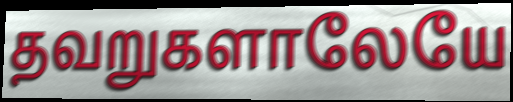
தவறுகளாலேயே